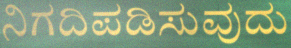
ನಿಗದಿಪಡಿಸುವುದು